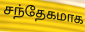
சந்தேகமாக